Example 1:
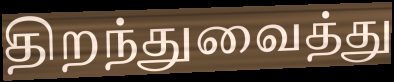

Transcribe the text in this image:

திறந்துவைத்து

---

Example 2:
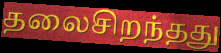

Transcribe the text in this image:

தலைசிறந்தது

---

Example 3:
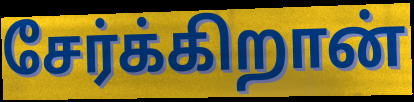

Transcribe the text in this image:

சேர்க்கிறான்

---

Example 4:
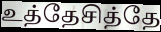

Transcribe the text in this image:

உத்தேசித்தே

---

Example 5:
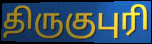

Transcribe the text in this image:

திருகுபுரி